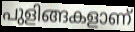
പുളിങ്ങകളാണ്